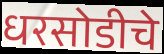
धरसोडीचे